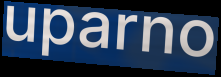
uparno